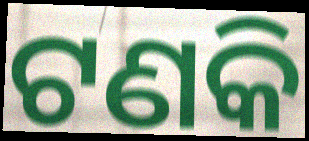
ଟଣକି